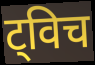
ट्विच